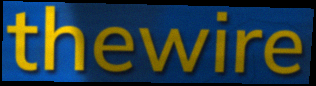
thewire